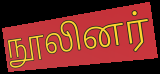
நூலினர்